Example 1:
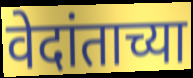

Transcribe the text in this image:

वेदांताच्या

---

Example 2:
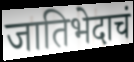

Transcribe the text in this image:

जातिभेदाचं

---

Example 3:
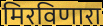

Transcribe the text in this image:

मिरविणारा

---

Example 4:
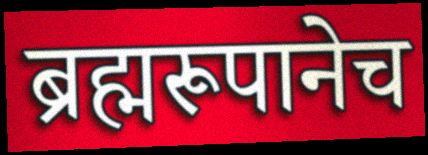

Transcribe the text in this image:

ब्रह्मरूपानेच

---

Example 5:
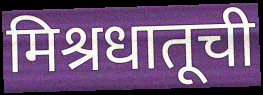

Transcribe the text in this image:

मिश्रधातूची